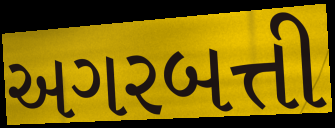
અગરબત્તી